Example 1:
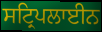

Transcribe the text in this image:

ਸਟ੍ਰਿਪਲਾਈਨ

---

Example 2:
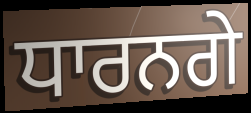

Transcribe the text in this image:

ਧਾਰਨਗੇ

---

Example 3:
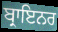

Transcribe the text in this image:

ਬ੍ਰਾਇਨਰ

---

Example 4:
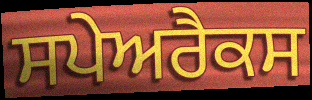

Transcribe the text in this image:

ਸਪੇਅਰੈਕਸ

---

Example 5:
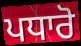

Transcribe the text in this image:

ਪਧਾਰੋ